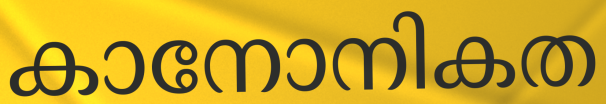
കാനോനികത